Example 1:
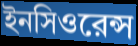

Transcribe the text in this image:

ইনসিওরেন্স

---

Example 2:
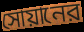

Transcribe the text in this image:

সোয়ানের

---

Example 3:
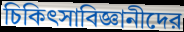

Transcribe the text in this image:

চিকিৎসাবিজ্ঞানীদের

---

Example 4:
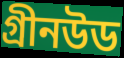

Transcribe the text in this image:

গ্রীনউড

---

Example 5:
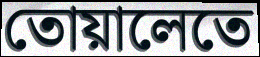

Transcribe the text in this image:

তোয়ালেতে